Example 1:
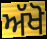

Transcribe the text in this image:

ਅੱਖੋ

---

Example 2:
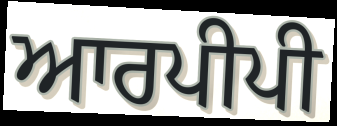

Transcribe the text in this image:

ਆਰਪੀਪੀ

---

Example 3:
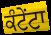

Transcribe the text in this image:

ਕੰਟੇਂਟਾ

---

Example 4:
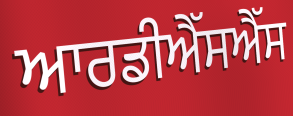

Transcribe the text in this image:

ਆਰਡੀਐੱਸਐੱਸ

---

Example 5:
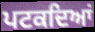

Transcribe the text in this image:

ਪਟਕਦਿਆਂ